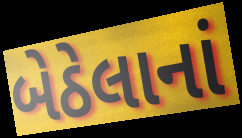
બેઠેલાનાં